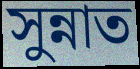
সুন্নাত